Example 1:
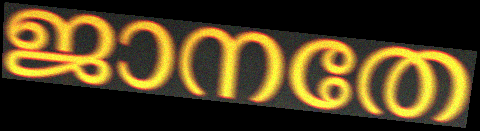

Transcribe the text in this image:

ജാനതേ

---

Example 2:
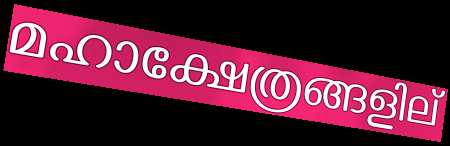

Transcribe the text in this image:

മഹാക്ഷേത്രങ്ങളില്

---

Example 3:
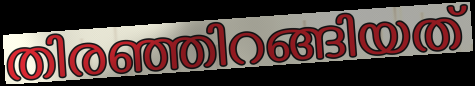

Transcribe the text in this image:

തിരഞ്ഞിറങ്ങിയത്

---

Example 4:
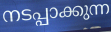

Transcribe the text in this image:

നടപ്പാക്കുന്ന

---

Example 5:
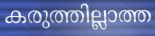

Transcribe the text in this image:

കരുത്തില്ലാത്ത